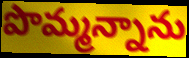
పొమ్మన్నాను